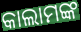
କାଲାମଙ୍କ